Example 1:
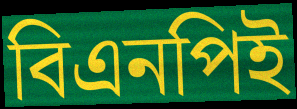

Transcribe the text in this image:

বিএনপিই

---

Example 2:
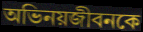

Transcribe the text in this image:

অভিনয়জীবনকে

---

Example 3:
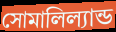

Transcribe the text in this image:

সোমালিল্যান্ড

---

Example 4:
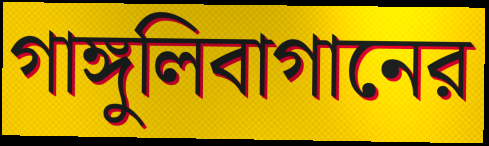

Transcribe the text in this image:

গাঙ্গুলিবাগানের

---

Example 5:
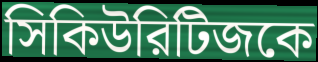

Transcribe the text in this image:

সিকিউরিটিজকে